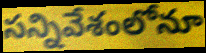
సన్నివేశంలోనూ